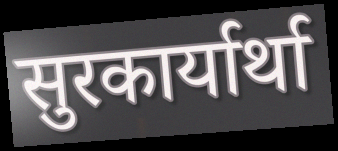
सुरकार्यार्था